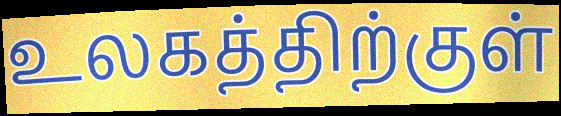
உலகத்திற்குள்